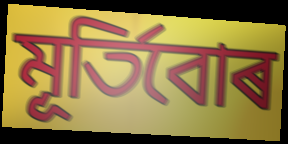
মূৰ্তিবোৰ